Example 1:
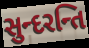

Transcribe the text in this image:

સુન્દરન્તિ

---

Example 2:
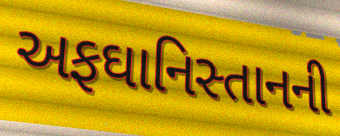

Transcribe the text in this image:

અફઘાનિસ્તાનની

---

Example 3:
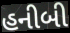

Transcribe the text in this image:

હનીબી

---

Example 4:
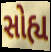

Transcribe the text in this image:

સોહ્ય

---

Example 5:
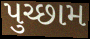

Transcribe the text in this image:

પુચ્છામ